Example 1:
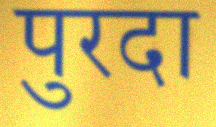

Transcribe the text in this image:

पुरदा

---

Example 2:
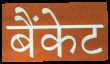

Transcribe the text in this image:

बैंकेट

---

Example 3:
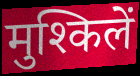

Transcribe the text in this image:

मुश्किलें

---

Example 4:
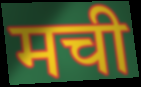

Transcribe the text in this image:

मची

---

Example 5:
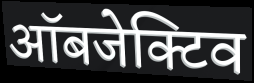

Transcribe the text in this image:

ऑबजेक्टिव